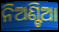
ନିଅଣ୍ଟିଆ